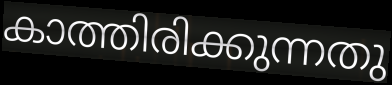
കാത്തിരിക്കുന്നതു